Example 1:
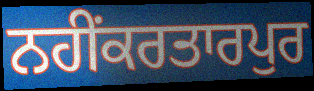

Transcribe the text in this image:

ਨਹੀਂਕਰਤਾਰਪੁਰ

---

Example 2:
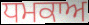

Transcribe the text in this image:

ਧਮਕਾਅ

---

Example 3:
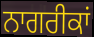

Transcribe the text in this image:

ਨਾਗਰੀਕਾਂ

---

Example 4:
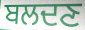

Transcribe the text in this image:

ਬਲਦਣ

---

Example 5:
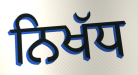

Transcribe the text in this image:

ਨਿਖੱਧ